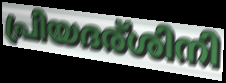
പ്രിയദര്ശിനി